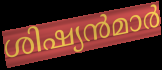
ശിഷ്യൻമാർ